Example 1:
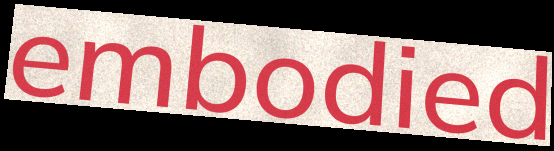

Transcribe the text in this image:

embodied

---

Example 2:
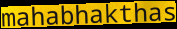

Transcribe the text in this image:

mahabhakthas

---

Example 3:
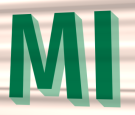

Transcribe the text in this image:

MI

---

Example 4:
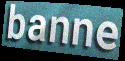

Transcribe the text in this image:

banne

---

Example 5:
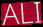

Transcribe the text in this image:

ALI